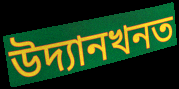
উদ্যানখনত